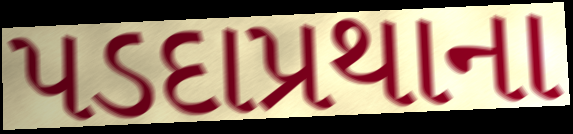
પડદાપ્રથાના